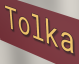
Tolka